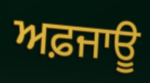
ਅਫ਼ਜਾਊ